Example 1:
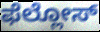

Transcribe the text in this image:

ಫೆಲ್ಲೋಸ್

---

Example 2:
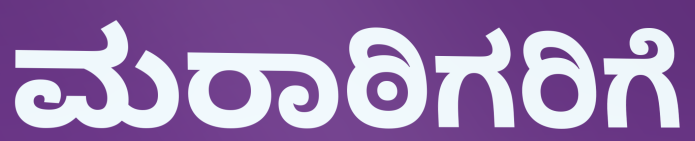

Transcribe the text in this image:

ಮರಾಠಿಗರಿಗೆ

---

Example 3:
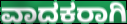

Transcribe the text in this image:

ವಾದಕರಾಗಿ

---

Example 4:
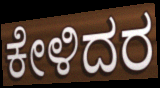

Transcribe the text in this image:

ಕೇಳಿದರ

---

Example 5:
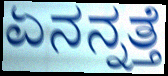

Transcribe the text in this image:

ಏನನ್ನತ್ತೆ